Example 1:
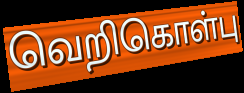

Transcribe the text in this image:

வெறிகொள்பு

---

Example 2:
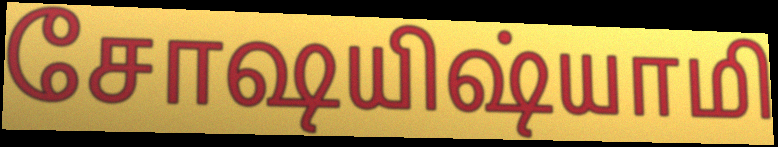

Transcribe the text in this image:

சோஷயிஷ்யாமி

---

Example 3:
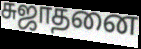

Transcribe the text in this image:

சுஜாதனை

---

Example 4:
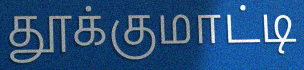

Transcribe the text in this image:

தூக்குமாட்டி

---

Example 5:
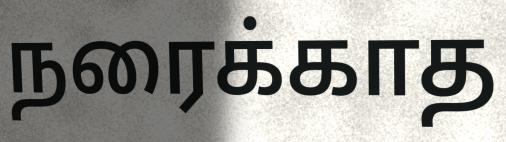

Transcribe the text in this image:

நரைக்காத